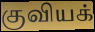
குவியக்